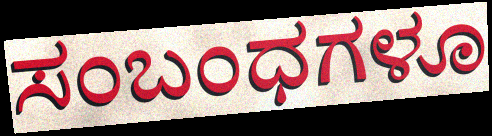
ಸಂಬಂಧಗಳೂ